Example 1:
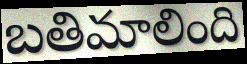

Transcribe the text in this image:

బతిమాలింది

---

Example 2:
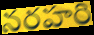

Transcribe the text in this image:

నరహరి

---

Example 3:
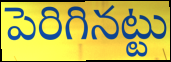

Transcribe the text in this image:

పెరిగినట్టు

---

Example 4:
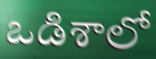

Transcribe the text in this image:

ఒడిశాలో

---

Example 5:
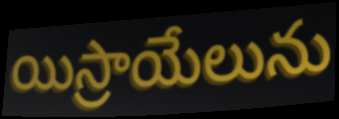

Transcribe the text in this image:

యిస్రాయేలును